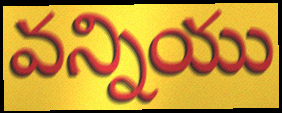
వన్నియు